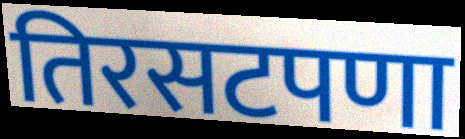
तिरसटपणा